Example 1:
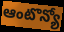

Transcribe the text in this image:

ఆంటొన్యో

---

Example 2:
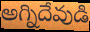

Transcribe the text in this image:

అగ్నిదేవుడి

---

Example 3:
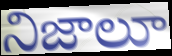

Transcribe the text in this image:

నిజాలూ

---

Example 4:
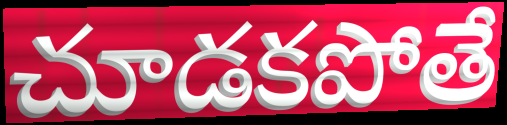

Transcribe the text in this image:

చూడకపోతే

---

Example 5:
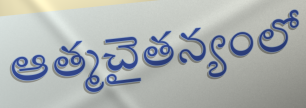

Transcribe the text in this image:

ఆత్మచైతన్యంలో